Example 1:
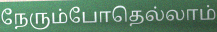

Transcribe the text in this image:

நேரும்போதெல்லாம்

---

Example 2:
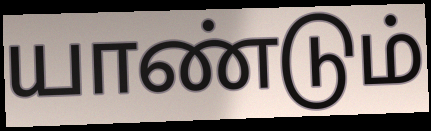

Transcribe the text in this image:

யாண்டும்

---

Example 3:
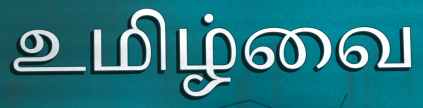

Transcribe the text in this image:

உமிழ்வை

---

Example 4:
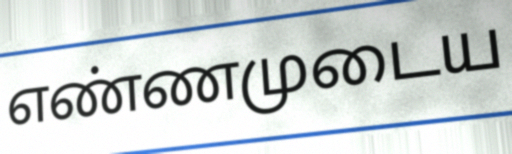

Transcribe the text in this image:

எண்ணமுடைய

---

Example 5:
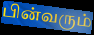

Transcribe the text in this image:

பின்வரும்